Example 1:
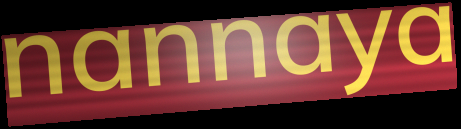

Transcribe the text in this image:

nannaya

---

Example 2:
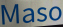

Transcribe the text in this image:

Maso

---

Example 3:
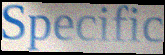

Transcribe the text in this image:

Specific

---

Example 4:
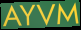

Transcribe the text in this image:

AYVM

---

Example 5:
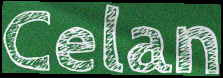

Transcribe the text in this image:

Celan